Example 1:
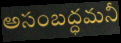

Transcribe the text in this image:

అసంబద్ధమనీ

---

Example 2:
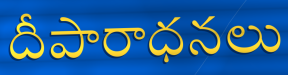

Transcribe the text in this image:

దీపారాధనలు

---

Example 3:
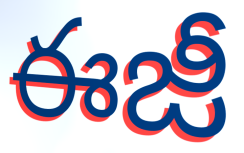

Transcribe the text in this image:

ఈజీ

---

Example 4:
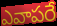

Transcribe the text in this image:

ఎవాపరే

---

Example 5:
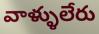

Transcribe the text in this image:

వాళ్ళులేరు